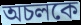
অচলকে